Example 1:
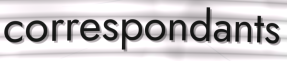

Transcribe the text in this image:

correspondants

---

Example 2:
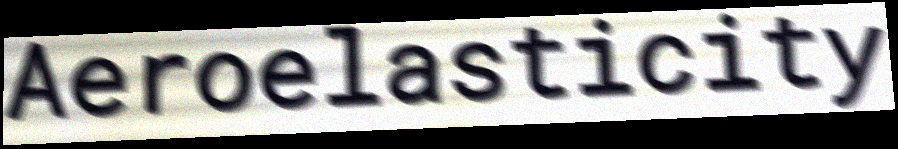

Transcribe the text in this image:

Aeroelasticity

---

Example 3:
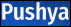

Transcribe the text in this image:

Pushya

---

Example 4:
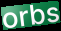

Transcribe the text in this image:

orbs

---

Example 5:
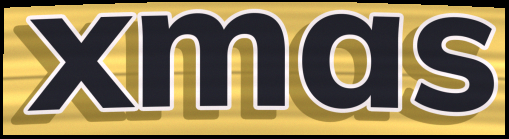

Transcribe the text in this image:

xmas